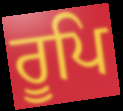
ਰੂਪਿ